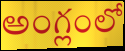
అంగ్లంలో